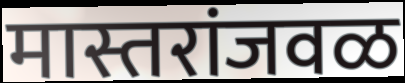
मास्तरांजवळ